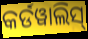
କର୍ଡୱାଲିସ୍